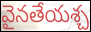
వైనతేయశ్చ